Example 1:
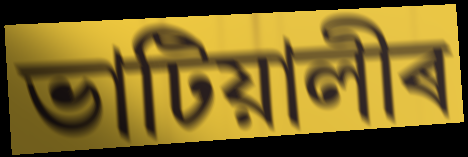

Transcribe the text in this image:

ভাটিয়ালীৰ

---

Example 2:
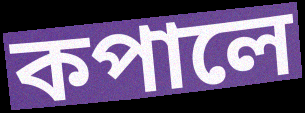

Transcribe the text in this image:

কপালে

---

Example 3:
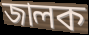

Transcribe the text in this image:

জালক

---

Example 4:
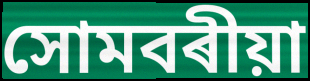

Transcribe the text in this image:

সোমবৰীয়া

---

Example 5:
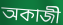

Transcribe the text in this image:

অকাজী